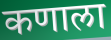
कणाला